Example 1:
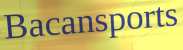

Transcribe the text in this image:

Bacansports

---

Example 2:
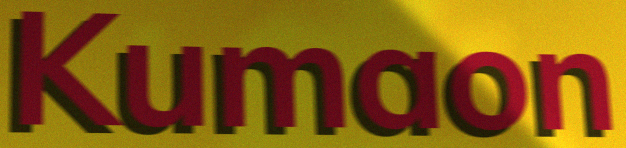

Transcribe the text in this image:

Kumaon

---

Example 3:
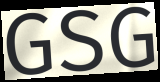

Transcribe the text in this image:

GSG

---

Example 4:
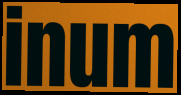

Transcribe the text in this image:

inum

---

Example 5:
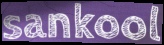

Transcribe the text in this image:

sankool